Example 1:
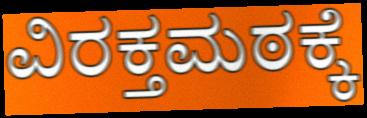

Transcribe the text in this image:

ವಿರಕ್ತಮಠಕ್ಕೆ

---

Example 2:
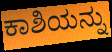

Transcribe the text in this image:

ಕಾಶಿಯನ್ನು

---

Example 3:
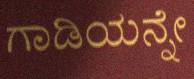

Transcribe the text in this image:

ಗಾಡಿಯನ್ನೇ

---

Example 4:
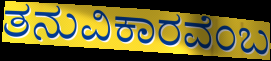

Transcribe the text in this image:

ತನುವಿಕಾರವೆಂಬ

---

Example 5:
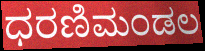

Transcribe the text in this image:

ಧರಣಿಮಂಡಲ